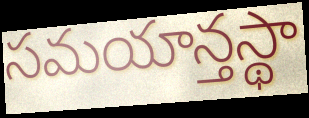
సమయాన్తస్థా